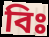
বিঃ